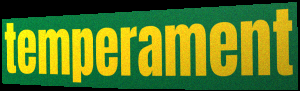
temperament